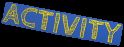
ACTIVITY